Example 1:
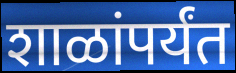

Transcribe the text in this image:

शाळांपर्यंत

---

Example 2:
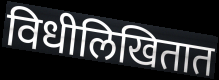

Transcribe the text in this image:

विधीलिखितात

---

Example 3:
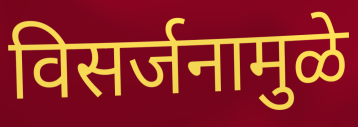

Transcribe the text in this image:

विसर्जनामुळे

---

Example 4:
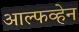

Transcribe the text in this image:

आल्फव्हेन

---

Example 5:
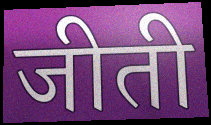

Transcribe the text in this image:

जीती